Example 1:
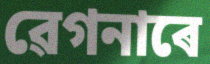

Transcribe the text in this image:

ৱেগনাৰে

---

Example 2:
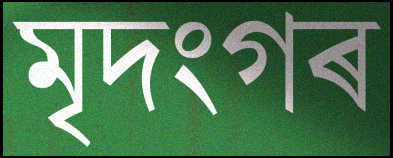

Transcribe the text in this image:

মৃদংগৰ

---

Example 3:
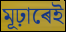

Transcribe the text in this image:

মূঢ়াৰেই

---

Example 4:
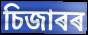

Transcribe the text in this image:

চিজাৰৰ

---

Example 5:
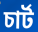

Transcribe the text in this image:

চাৰ্ট